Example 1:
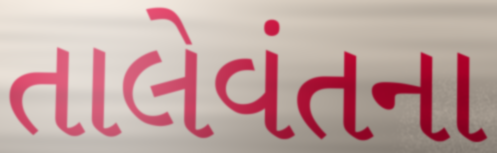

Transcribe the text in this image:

તાલેવંતના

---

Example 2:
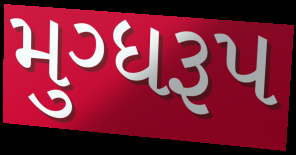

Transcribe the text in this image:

મુગ્ધરૂપ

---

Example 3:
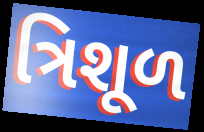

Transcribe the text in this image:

ત્રિશૂળ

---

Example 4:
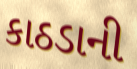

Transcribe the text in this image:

કાઠડાની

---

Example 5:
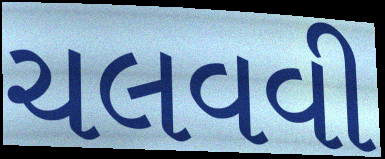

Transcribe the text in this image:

ચલવવી